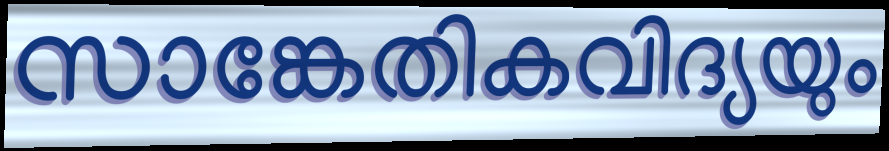
സാങ്കേതികവിദ്യയും